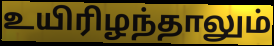
உயிரிழந்தாலும்